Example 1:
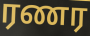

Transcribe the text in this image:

ரணர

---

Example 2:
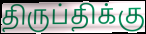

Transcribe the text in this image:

திருப்திக்கு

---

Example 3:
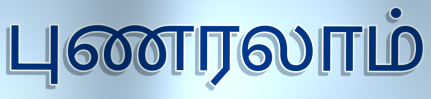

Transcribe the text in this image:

புணரலாம்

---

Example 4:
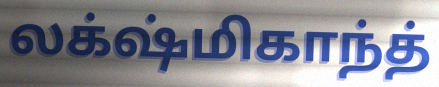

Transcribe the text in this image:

லக்‌ஷ்மிகாந்த்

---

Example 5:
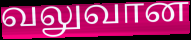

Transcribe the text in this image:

வலுவான